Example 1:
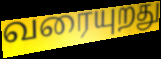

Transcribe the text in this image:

வரையுறது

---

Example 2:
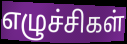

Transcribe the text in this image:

எழுச்சிகள்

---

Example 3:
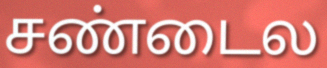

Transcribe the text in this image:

சண்டைல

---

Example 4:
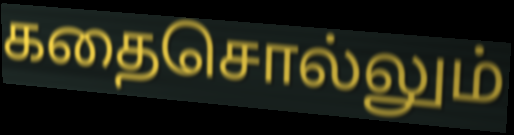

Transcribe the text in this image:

கதைசொல்லும்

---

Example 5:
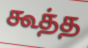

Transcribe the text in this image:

கூத்த